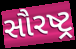
સૌરષ્ટ્ર